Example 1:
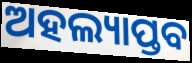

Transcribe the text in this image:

ଅହଲ୍ୟାପ୍ତବ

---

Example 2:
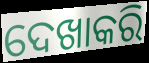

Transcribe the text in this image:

ଦେଖାକରି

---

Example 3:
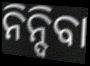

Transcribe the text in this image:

ନିନ୍ଦିବା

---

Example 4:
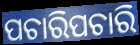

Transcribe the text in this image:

ପଚାରିପଚାରି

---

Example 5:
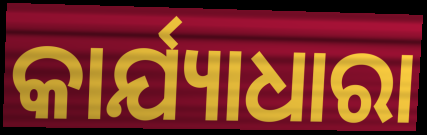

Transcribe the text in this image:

କାର୍ଯ୍ୟାଧାରା